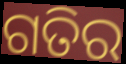
ଗତିର